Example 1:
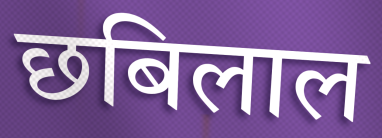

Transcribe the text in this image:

छबिलाल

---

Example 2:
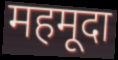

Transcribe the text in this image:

महमूदा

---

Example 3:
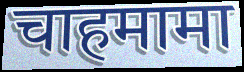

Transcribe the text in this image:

चाहमामा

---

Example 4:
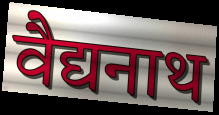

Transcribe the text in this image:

वैद्यनाथ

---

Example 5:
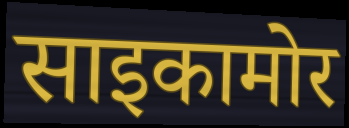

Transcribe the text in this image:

साइकामोर